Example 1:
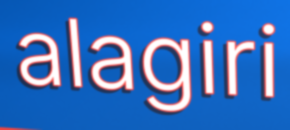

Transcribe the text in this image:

alagiri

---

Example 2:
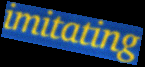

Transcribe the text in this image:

imitating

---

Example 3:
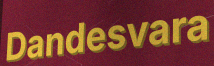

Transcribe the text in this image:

Dandesvara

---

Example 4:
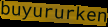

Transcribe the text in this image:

buyururken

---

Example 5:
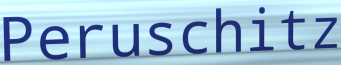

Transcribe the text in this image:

Peruschitz